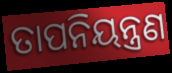
ତାପନିୟନ୍ତ୍ରଣ